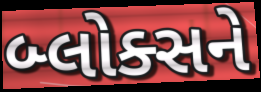
બ્લોક્સને